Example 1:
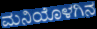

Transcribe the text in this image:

ಮನಿಯೊಳಗಿನ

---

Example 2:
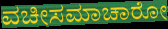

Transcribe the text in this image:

ವಚೀಸಮಾಚಾರೋ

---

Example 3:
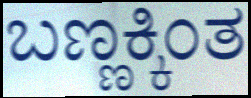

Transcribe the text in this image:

ಬಣ್ಣಕ್ಕಿಂತ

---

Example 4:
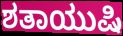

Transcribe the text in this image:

ಶತಾಯುಷಿ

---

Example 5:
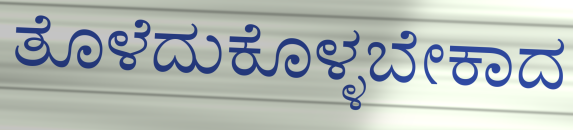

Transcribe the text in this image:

ತೊಳೆದುಕೊಳ್ಳಬೇಕಾದ